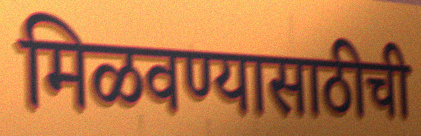
मिळवण्यासाठीची